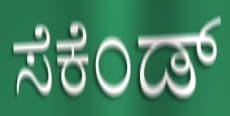
ಸೆಕೆಂಡ್